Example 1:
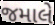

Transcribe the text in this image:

જમાલે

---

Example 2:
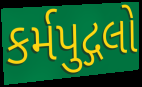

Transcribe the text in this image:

કર્મપુદ્ગલો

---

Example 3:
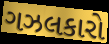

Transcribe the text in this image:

ગઝલકારો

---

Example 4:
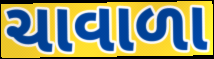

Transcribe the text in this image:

ચાવાળા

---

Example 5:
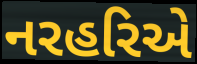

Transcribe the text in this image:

નરહરિએ